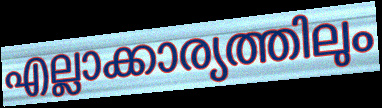
എല്ലാക്കാര്യത്തിലും